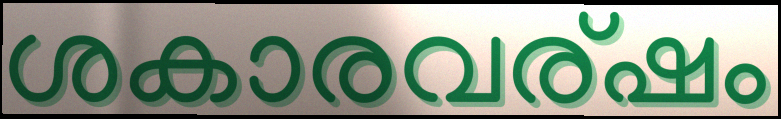
ശകാരവര്ഷം